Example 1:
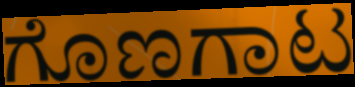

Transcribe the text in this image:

ಗೊಣಗಾಟ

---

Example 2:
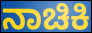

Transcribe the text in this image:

ನಾಚಿಕಿ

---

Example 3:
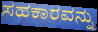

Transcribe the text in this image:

ಸಹಕಾರವನ್ನು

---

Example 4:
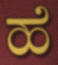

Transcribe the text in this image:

ಹೆ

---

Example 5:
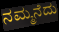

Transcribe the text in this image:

ನಮ್ಮನೆದು